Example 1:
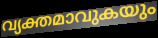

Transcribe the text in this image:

വ്യക്തമാവുകയും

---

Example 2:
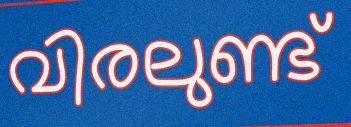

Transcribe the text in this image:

വിരലുണ്ട്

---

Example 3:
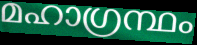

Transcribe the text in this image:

മഹാഗ്രന്ഥം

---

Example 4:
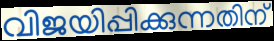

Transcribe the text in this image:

വിജയിപ്പിക്കുന്നതിന്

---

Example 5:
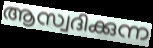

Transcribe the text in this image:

ആസ്വദിക്കുന്ന